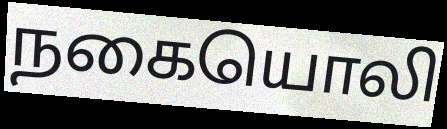
நகையொலி